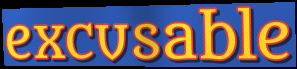
excusable